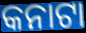
କନାଟା